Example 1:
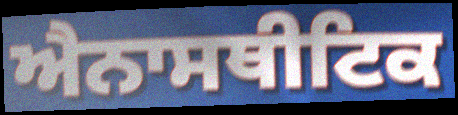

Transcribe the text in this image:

ਐਨਾਸਥੀਟਿਕ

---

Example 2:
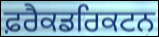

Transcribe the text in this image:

ਫ਼ਰੈਕਡਰਿਕਟਨ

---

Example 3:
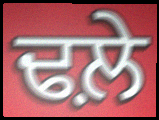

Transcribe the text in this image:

ਢਲ਼ੇ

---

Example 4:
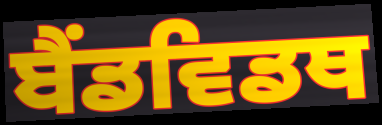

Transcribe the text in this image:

ਬੈਂਡਵਿਡਥ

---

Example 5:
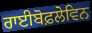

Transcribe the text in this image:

ਰਾਈਬੋਫ਼ਲੇਵਿਨ